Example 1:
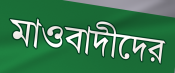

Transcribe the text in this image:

মাওবাদীদের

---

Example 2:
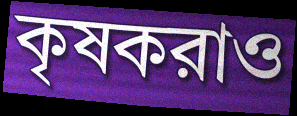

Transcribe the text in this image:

কৃষকরাও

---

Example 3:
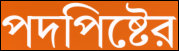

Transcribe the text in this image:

পদপিষ্টের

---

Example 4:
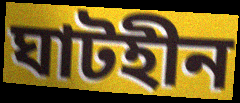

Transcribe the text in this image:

ঘাটহীন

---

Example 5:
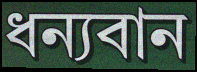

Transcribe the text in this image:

ধন্যবান